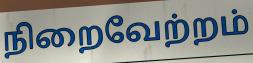
நிறைவேற்றம்